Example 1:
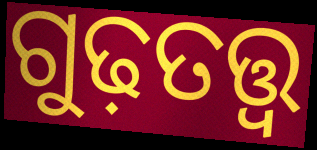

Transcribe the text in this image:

ଗୁଢ଼ତତ୍ତ୍ୱ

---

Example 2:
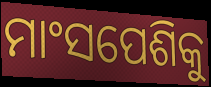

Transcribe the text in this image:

ମାଂସପେଶିକୁ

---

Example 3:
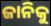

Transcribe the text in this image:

ଜାନିକୁ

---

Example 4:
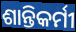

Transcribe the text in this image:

ଶାନ୍ତିକର୍ମୀ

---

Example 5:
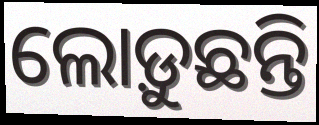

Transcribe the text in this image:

ଲୋଡ଼ୁଛନ୍ତି